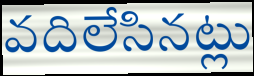
వదిలేసినట్లు